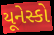
યૂનેસ્કો